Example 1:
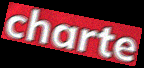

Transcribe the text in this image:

charte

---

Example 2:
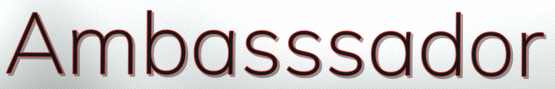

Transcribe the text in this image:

Ambasssador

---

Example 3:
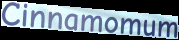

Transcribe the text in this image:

Cinnamomum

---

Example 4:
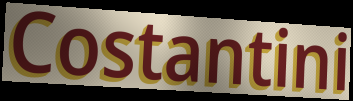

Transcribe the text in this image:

Costantini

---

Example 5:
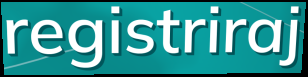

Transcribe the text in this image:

registriraj